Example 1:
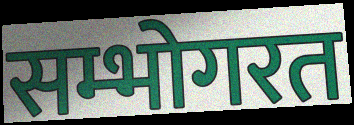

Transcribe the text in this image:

सम्भोगरत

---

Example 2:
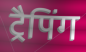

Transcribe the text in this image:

ट्रैपिंग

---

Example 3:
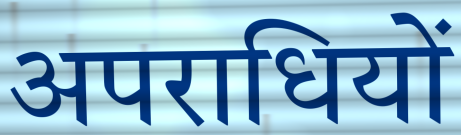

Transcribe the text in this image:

अपराधियों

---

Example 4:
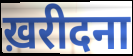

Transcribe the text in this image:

ख़रीदना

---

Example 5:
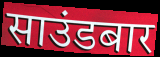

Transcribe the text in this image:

साउंडबार